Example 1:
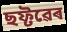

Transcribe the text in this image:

ছফ্টৱেৰ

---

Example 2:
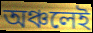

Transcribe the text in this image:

অঞ্চলেই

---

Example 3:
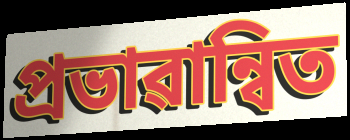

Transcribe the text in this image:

প্ৰভাৱান্বিত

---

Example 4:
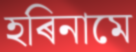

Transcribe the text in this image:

হৰিনামে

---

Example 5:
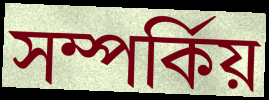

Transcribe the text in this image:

সম্পৰ্কিয়